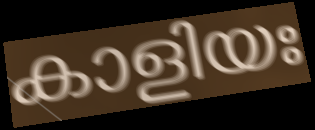
കാളിയഃ